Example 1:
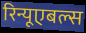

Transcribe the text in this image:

रिन्यूएबल्स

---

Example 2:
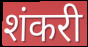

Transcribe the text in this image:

शंकरी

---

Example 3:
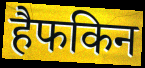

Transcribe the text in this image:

हैफकिन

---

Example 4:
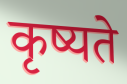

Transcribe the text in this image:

कृष्यते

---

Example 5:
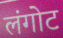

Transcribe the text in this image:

लंगोट